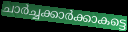
ചാർച്ചക്കാർക്കാകട്ടെ